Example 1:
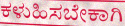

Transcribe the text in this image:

ಕಳುಹಿಸಬೇಕಾಗಿ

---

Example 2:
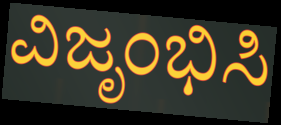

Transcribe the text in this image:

ವಿಜೃಂಭಿಸಿ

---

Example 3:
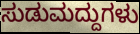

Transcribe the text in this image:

ಸುಡುಮದ್ದುಗಳು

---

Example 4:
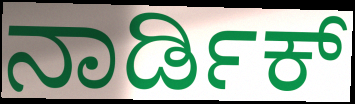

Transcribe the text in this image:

ನಾರ್ಡಿಕ್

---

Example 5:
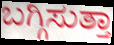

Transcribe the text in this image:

ಬಗ್ಗಿಸುತ್ತಾ